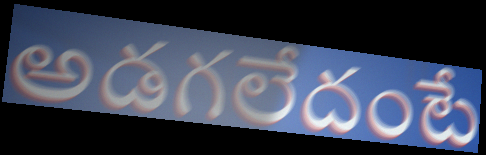
అడగలేదంటే